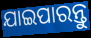
ଯାଇପାରନ୍ତୁ